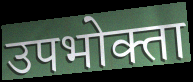
उपभोक्‍ता